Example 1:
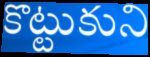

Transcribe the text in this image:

కొట్టుకుని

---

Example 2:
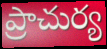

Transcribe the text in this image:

ప్రాచుర్య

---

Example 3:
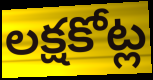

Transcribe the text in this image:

లక్షకోట్ల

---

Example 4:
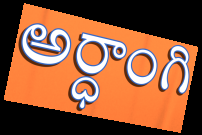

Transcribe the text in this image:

అర్ధాంగి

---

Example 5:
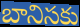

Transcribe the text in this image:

బానిసకు